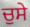
ਚੁਸੇ